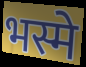
भस्मे